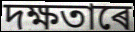
দক্ষতাৰে